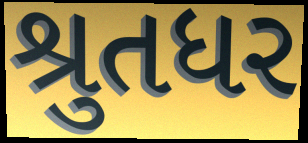
શ્રુતધર